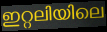
ഇറ്റലിയിലെ